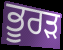
ਭੂਰੜ